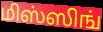
மிஸ்ஸிங்